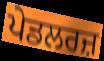
ਪੇਡਲਰਜ਼